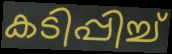
കടിപ്പിച്ച്